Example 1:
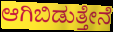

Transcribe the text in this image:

ಆಗಿಬಿಡುತ್ತೇನೆ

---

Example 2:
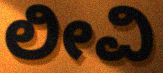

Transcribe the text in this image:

ಲೀವಿ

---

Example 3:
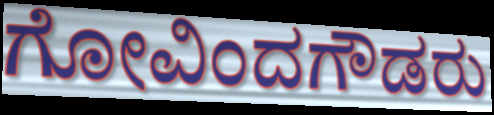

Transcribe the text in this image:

ಗೋವಿಂದಗೌಡರು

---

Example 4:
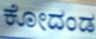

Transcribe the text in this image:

ಕೋದಂಡ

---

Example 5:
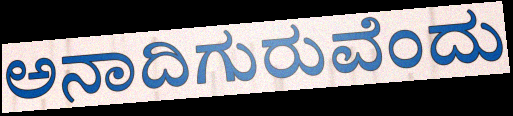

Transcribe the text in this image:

ಅನಾದಿಗುರುವೆಂದು